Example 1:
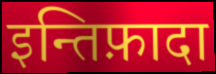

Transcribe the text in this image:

इन्तिफ़ादा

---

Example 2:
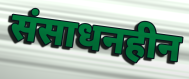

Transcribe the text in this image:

संसाधनहीन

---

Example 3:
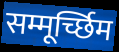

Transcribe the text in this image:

सम्मूर्च्छिम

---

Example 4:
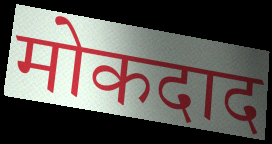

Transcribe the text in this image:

मोकदाद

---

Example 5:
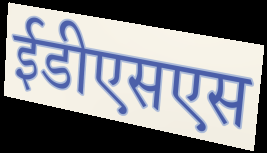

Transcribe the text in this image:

ईडीएसएस